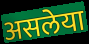
असलेया